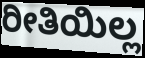
ರೀತಿಯಿಲ್ಲ